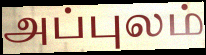
அப்புலம்